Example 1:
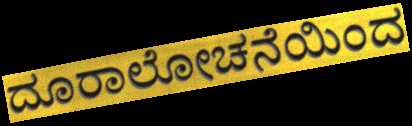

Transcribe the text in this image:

ದೂರಾಲೋಚನೆಯಿಂದ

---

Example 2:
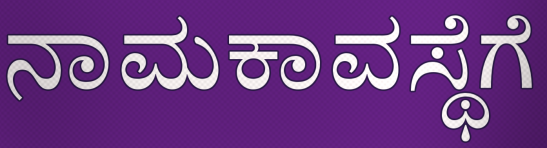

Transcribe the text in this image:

ನಾಮಕಾವಸ್ಥೆಗೆ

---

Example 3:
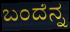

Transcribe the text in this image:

ಬಂದೆನ್ನ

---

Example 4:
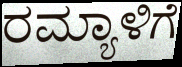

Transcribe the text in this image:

ರಮ್ಯಾಳಿಗೆ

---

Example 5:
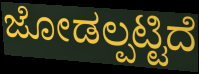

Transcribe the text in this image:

ಜೋಡಲ್ಪಟ್ಟಿದೆ